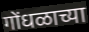
गोंधळाच्या